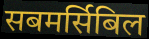
सबमर्सिबिल